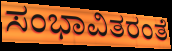
ಸಂಭಾವಿತರಂತೆ